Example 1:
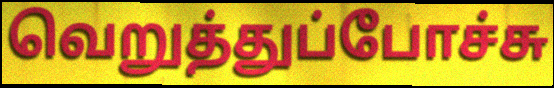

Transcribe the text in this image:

வெறுத்துப்போச்சு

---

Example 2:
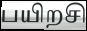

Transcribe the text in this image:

பயிறசி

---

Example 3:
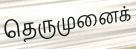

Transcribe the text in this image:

தெருமுனைக்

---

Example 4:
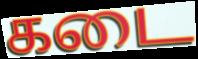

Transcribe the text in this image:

கடை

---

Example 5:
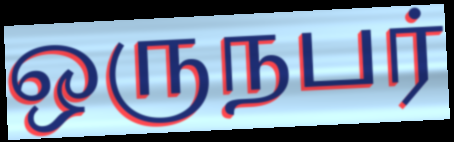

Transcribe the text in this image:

ஒருநபர்